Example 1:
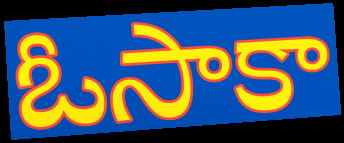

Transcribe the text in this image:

ఓసాకా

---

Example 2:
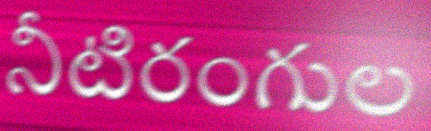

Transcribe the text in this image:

నీటిరంగుల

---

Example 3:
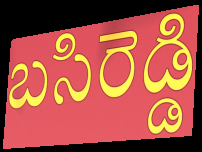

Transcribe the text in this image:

బసిరెడ్డి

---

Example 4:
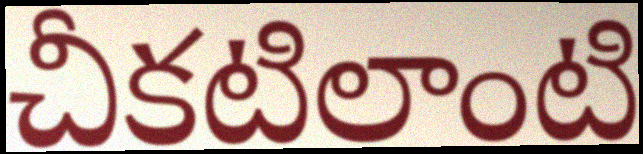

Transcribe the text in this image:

చీకటిలాంటి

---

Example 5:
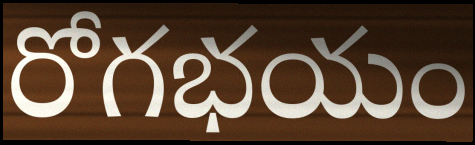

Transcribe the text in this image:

రోగభయం